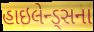
હાઇલેન્ડ્સના